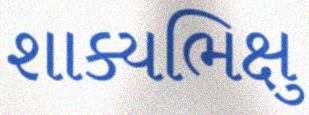
શાક્યભિક્ષુ